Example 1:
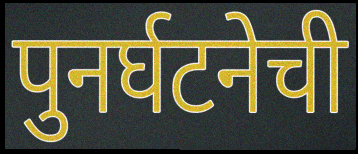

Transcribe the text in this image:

पुनर्घटनेची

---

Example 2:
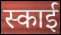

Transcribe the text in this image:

स्काई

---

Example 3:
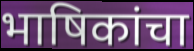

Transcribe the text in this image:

भाषिकांचा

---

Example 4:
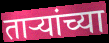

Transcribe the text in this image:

तार्‍यांच्या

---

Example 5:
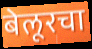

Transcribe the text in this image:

बेलूरचा